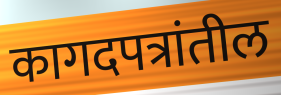
कागदपत्रांतील